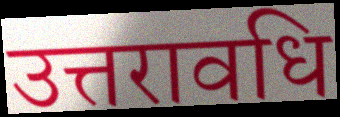
उत्तरावधि